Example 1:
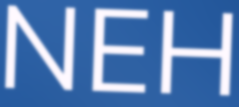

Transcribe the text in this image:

NEH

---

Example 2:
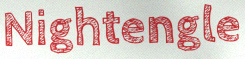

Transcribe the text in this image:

Nightengle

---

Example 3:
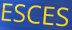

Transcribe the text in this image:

ESCES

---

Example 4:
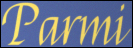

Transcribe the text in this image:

Parmi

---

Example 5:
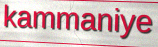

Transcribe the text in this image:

kammaniye